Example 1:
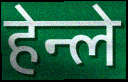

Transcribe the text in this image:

हेन्ले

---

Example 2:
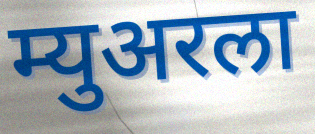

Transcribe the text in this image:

म्युअरला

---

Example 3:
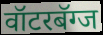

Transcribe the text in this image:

वॉटरबॅग्ज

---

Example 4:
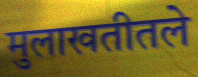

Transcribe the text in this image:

मुलाखतीतले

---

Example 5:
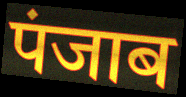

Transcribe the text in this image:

पंजाब